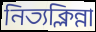
নিত্যক্লিন্না